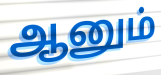
ஆனும்